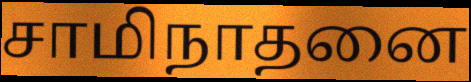
சாமிநாதனை